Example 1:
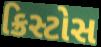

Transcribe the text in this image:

ક્રિસ્ટોસ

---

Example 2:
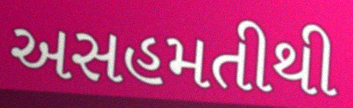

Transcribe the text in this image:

અસહમતીથી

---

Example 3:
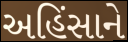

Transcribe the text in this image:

અહિંસાને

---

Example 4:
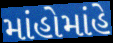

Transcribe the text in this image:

માંહોમાંહે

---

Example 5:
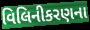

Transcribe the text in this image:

વિલિનીકરણના